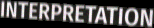
INTERPRETATION